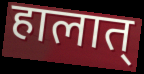
हालात्